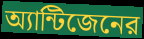
অ্যান্টিজেনের